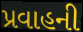
પ્રવાહની